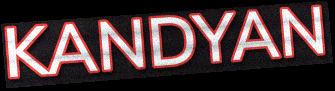
KANDYAN